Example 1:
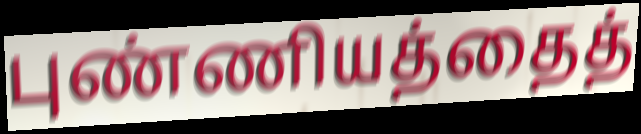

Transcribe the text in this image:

புண்ணியத்தைத்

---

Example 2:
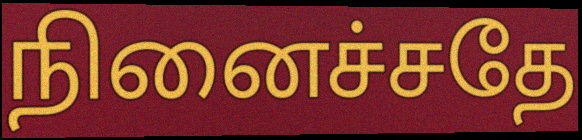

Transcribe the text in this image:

நினைச்சதே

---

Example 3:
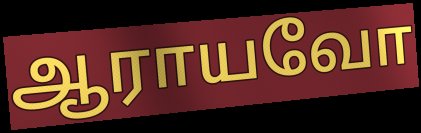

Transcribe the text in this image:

ஆராயவோ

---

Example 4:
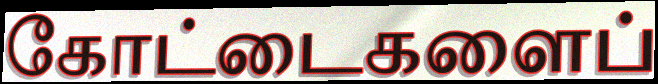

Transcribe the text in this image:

கோட்டைகளைப்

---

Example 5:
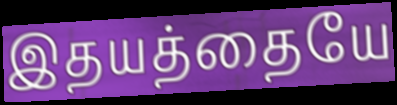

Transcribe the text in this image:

இதயத்தையே